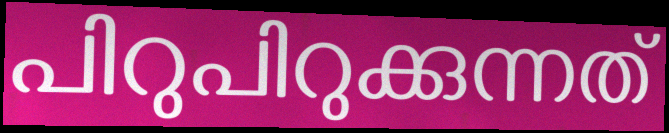
പിറുപിറുക്കുന്നത്